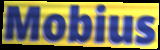
Mobius